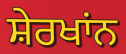
ਸ਼ੇਰਖਾਂਨ